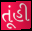
તૂંહી